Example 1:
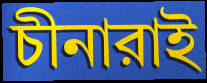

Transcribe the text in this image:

চীনারাই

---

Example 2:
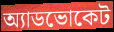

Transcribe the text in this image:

অ্যাডভোকেট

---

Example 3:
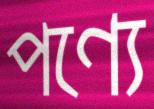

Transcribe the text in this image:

পণ্যে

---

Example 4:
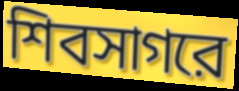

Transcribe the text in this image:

শিবসাগরে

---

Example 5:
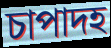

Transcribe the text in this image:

চাপাদহ